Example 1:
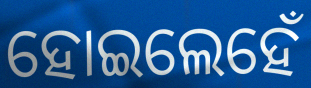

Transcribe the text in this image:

ହୋଇଲେହେଁ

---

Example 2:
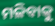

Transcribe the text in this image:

ମଳିବାକୁ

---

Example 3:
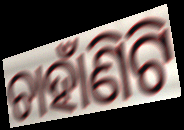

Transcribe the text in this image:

ଚାହାଁଣିଟି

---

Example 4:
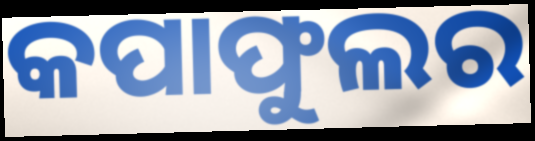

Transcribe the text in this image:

କପାଫୁଲର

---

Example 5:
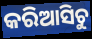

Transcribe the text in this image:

କରିଆସିଚୁ